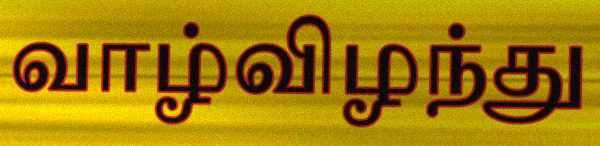
வாழ்விழந்து